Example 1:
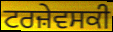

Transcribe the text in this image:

ਟਰਜ਼ੇਵਸਕੀ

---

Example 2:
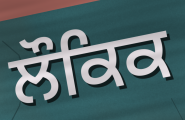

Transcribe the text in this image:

ਲੌਕਿਕ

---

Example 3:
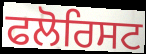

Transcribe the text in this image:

ਫਲੋਰਿਸਟ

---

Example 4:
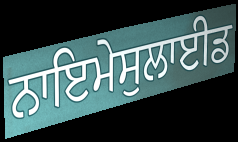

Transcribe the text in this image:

ਨਾਇਮੇਸੁਲਾਈਡ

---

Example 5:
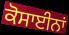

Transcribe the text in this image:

ਕੋਸਾਈਨਾਂ